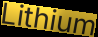
Lithium